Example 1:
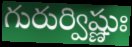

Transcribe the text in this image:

గురుర్విష్ణుః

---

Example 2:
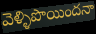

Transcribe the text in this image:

వెళ్ళిపొయిందనా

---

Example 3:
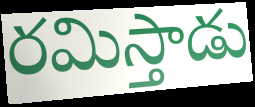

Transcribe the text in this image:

రమిస్తాడు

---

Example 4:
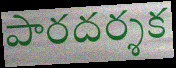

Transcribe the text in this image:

పారదర్శక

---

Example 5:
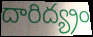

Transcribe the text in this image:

దారిద్య్రం